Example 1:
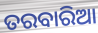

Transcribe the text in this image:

ତରବାରିଆ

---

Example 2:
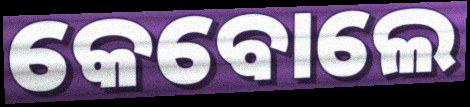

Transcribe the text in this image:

କେବୋଲେ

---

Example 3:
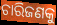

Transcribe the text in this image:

ଚାରିଜଣକୁ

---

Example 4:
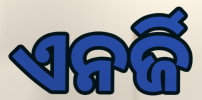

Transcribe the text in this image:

ଏନର୍ଜି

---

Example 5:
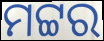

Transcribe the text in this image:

ମଟ୍ଟର